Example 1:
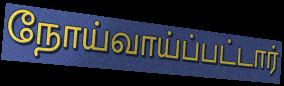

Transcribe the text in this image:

நோய்வாய்ப்பட்டார்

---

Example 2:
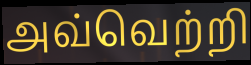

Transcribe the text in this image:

அவ்வெற்றி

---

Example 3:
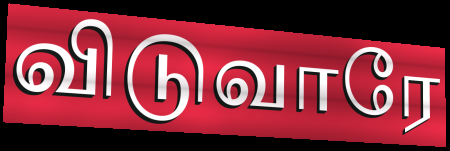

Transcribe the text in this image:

விடுவாரே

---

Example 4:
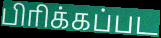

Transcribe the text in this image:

பிரிக்கப்பட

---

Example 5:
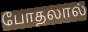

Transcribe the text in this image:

போதலால்